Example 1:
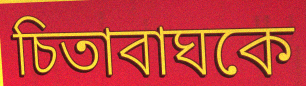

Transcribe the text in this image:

চিতাবাঘকে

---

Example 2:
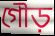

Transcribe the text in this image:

গৌড়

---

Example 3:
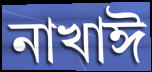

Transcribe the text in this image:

নাখাঈ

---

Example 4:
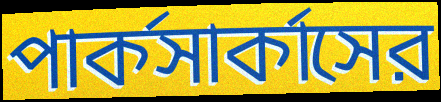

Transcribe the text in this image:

পার্কসার্কাসের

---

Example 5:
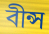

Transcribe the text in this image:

বীন্স